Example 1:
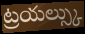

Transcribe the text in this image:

ట్రయల్స్కు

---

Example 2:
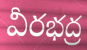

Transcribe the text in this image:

వీరభద్ర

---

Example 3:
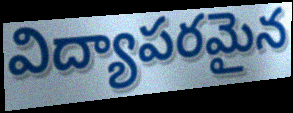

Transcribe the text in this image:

విద్యాపరమైన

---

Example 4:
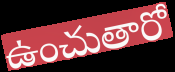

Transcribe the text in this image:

ఉంచుతారో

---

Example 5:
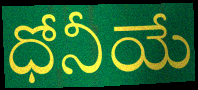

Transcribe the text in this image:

ధోనీయే